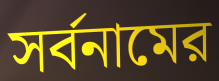
সর্বনামের